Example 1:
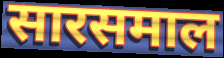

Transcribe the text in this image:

सारसमाल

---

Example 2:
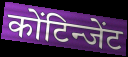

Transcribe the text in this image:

कोंटिन्जेंट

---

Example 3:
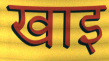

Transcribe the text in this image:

खाइ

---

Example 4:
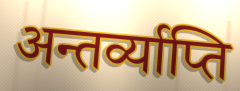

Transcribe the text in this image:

अन्तर्व्याप्ति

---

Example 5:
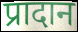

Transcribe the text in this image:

प्रादान